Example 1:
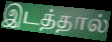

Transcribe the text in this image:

இடத்தால்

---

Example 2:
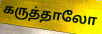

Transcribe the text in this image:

கருத்தாலோ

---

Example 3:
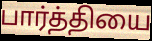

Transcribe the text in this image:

பார்த்தியை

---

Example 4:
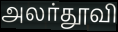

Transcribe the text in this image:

அலர்தூவி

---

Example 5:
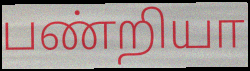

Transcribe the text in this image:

பண்றியா